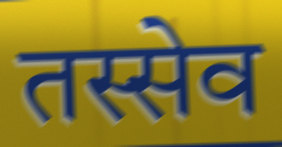
तस्सेव